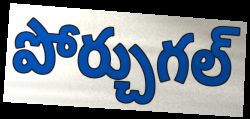
పోర్చుగల్